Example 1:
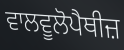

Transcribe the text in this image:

ਵਾਲਵੂਲੋਪੈਥੀਜ਼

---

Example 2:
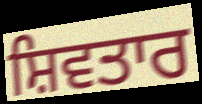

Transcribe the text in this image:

ਸ਼ਿਵਤਾਰ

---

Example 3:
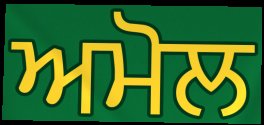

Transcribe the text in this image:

ਅਮੋਲ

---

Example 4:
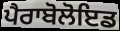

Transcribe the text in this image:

ਪੈਰਾਬੋਲੋਇਡ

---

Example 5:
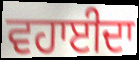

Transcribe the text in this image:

ਵਹਾਈਦਾ